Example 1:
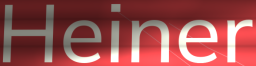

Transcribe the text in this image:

Heiner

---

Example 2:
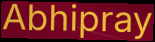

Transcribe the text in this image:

Abhipray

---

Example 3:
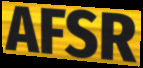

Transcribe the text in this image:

AFSR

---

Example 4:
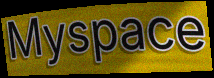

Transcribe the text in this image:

Myspace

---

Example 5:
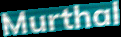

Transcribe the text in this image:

Murthal